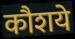
कौशये